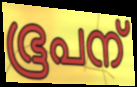
ഭൂപന്